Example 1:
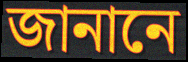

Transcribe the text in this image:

জানানে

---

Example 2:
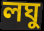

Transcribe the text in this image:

লঘু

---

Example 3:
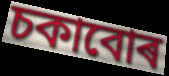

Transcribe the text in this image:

চকাবোৰ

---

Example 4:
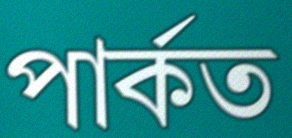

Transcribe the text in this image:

পাৰ্কত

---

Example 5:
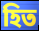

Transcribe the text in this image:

হিত